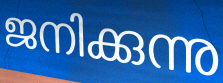
ജനിക്കുന്നു